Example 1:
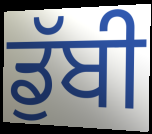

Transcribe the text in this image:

ਡੁੱਬੀ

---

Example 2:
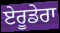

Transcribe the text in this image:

ਏਰੂਡੇਰਾ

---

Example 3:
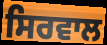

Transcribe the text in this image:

ਸਿਰਵਾਲ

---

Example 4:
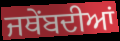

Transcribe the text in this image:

ਜਥੇਂਬਦੀਆਂ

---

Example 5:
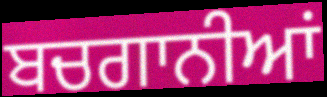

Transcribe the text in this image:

ਬਚਗਾਨੀਆਂ